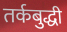
तर्कबुद्धी